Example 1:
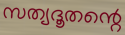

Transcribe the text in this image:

സത്യദൂതന്റെ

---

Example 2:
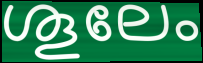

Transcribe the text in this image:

ശൂലേം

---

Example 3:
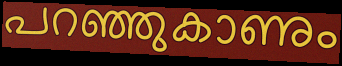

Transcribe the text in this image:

പറഞ്ഞുകാണും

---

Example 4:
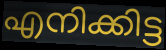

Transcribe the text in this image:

എനിക്കിട്ട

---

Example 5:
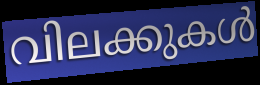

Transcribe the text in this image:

വിലക്കുകൾ